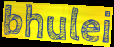
bhulei